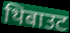
थिबाउट